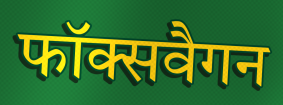
फॉक्सवैगन